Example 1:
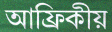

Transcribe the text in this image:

আফ্ৰিকীয়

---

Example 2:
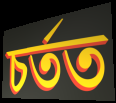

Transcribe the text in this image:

চৰ্তত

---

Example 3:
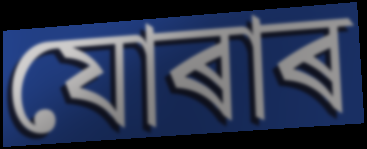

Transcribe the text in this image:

যোৰাৰ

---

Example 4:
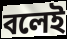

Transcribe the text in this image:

বলেই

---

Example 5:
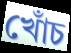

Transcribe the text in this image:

খোঁচ